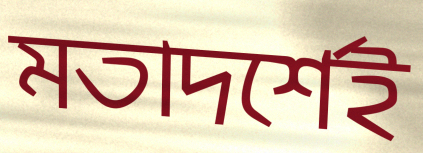
মতাদর্শেই